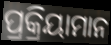
ପ୍ରକ୍ରିୟାମାନ